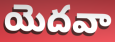
యెదవా